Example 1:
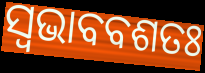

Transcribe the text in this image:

ସ୍ୱଭାବବଶତଃ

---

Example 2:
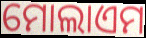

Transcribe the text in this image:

ମୋଲାଏମ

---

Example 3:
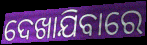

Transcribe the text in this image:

ଦେଖାଯିବାରେ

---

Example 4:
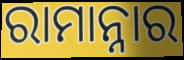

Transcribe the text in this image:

ରାମାନ୍ନାର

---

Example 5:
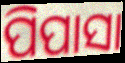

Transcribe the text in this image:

ପିପାସା